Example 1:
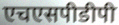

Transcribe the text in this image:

एचएसपीडीपी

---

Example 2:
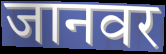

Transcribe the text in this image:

जानवर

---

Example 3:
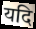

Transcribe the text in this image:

यदि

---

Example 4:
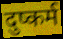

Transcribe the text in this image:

दुष्कर्म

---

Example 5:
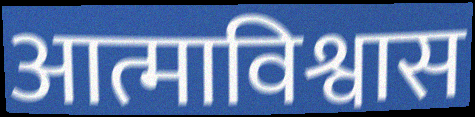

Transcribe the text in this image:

आत्माविश्वास